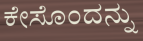
ಕೇಸೊಂದನ್ನು